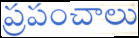
ప్రపంచాలు